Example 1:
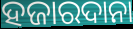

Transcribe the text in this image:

ହଜାରଦାନା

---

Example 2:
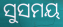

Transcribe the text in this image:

ସୁସମୟ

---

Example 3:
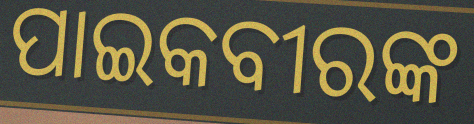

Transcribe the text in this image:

ପାଇକବୀରଙ୍କ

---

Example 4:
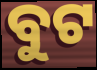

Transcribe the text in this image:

ବୁଟ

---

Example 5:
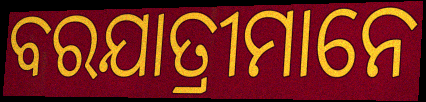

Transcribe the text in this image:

ବରଯାତ୍ରୀମାନେ